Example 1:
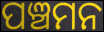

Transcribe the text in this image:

ପଞ୍ଚମନ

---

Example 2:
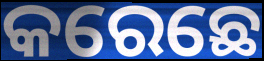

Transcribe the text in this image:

କରେଛେ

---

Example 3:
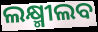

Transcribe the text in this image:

ଲକ୍ଷ୍ମୀଲବ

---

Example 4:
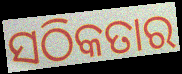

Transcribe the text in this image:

ସଠିକତାର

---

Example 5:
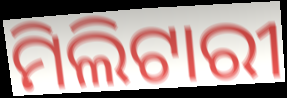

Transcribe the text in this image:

ମିଲିଟାରୀ